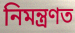
নিমন্ত্ৰণত